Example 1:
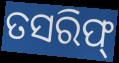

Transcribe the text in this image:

ତସରିଫ୍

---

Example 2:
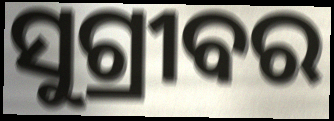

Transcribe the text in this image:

ସୁଗ୍ରୀବର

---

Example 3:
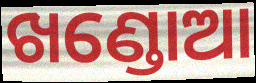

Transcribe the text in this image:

ଖଣ୍ଡୋଆ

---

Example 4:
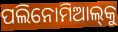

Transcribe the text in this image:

ପଲିନୋମିଆଲ୍‌କୁ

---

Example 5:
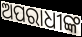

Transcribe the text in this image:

ଅପରାଧୀଙ୍କ